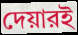
দেয়ারই